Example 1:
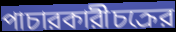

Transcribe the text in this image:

পাচারকারীচক্রের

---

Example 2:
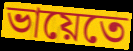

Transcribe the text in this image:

ভায়েতে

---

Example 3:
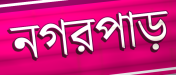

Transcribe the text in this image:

নগরপাড়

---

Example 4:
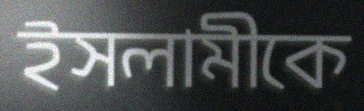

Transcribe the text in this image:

ইসলামীকে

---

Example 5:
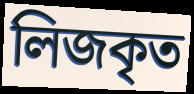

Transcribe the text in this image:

লিজকৃত